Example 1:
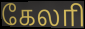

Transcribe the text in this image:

கேலரி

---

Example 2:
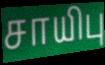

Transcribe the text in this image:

சாயிபு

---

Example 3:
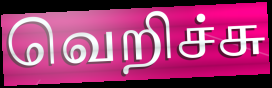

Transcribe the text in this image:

வெறிச்சு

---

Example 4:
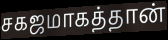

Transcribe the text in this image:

சகஜமாகத்தான்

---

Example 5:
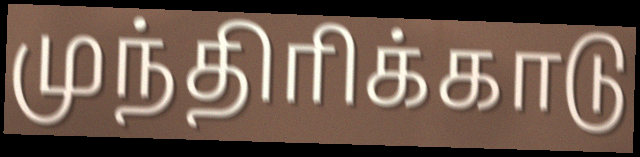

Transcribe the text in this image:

முந்திரிக்காடு